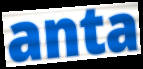
anta